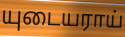
யுடையராய்